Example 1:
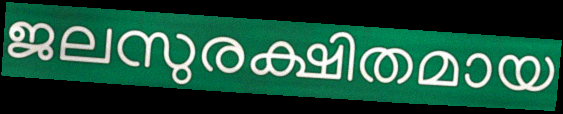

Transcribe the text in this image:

ജലസുരക്ഷിതമായ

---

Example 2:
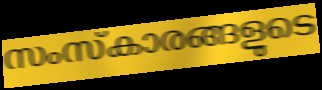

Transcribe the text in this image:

സംസ്‌കാരങ്ങളുടെ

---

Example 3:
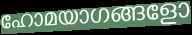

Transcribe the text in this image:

ഹോമയാഗങ്ങളോ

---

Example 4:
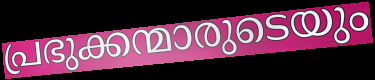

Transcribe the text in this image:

പ്രഭുക്കന്മാരുടെയും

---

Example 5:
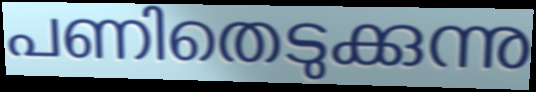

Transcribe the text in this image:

പണിതെടുക്കുന്നു